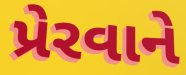
પ્રેરવાને